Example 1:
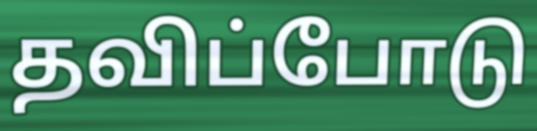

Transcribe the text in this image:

தவிப்போடு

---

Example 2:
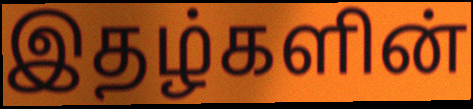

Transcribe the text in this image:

இதழ்களின்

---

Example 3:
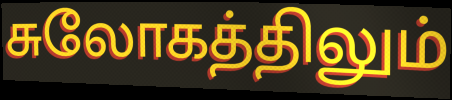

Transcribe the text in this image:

சுலோகத்திலும்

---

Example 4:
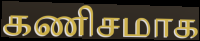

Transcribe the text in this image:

கணிசமாக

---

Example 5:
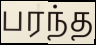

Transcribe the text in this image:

பரந்த